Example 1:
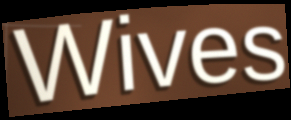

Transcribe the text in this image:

Wives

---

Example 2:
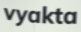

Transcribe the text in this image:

vyakta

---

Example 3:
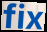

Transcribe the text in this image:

fix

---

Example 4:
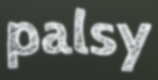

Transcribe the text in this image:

palsy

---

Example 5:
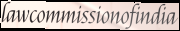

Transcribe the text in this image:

lawcommissionofindia